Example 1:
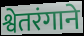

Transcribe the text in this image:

श्वेतरंगाने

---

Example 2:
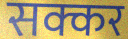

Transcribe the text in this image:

सक्कर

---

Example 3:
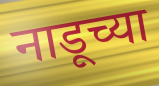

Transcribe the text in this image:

नाडूच्या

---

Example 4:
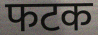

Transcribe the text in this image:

फटक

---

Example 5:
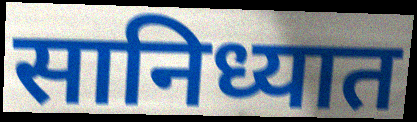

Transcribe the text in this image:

सानिध्यात